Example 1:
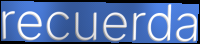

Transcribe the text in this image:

recuerda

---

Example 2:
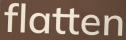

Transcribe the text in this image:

flatten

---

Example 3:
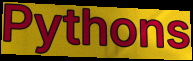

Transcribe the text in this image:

Pythons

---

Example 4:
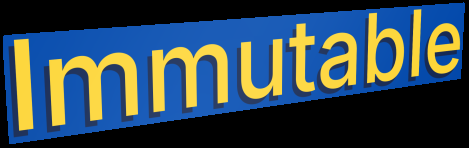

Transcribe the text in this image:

Immutable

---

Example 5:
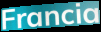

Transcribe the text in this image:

Francia